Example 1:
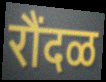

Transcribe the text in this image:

रौंदळ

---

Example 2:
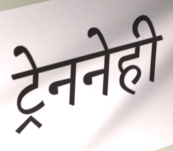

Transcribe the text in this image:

ट्रेननेही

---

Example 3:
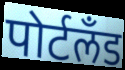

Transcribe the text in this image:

पोर्टलॅंड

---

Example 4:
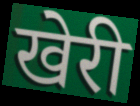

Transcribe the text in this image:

खेरी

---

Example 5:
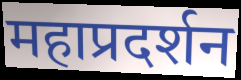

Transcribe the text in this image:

महाप्रदर्शन